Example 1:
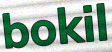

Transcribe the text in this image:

bokil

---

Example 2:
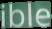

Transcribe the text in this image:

ible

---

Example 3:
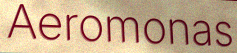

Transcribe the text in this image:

Aeromonas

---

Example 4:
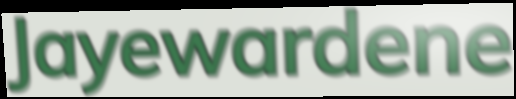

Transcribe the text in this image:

Jayewardene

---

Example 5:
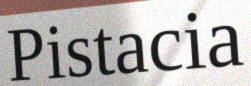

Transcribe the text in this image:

Pistacia